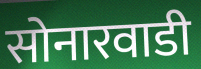
सोनारवाडी